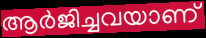
ആർജിച്ചവയാണ്